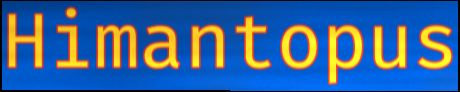
Himantopus